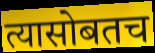
त्यासोबतच